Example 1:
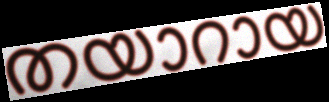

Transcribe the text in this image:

തയാറായ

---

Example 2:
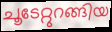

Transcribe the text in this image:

ചൂടേറ്റുറങ്ങിയ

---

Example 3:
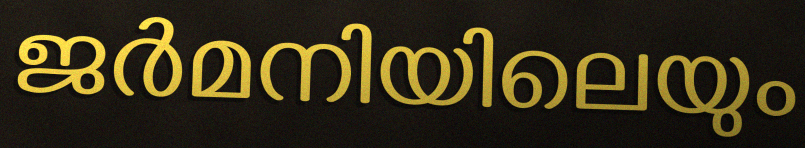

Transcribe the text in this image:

ജർമനിയിലെയും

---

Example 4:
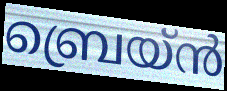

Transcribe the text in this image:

ബ്രെയ്ൻ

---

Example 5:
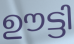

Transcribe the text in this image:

ഊട്ടി